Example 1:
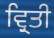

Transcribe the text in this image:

ਵ੍ਰਿਤੀ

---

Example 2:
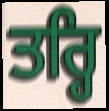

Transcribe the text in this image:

ਤਰ੍ਹਿ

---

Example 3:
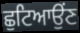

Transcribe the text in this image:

ਛੁਟਿਆਉਂਣ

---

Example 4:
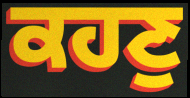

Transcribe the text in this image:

ਕਹਣੁ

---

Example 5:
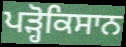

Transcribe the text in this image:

ਪੜ੍ਹੋਕਿਸਾਨ